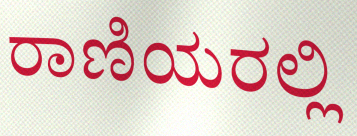
ರಾಣಿಯರಲ್ಲಿ